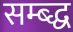
सम्ब्द्ध